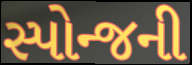
સ્પોન્જની